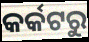
କର୍କଟରୁ